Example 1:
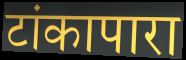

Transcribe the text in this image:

टांकापारा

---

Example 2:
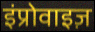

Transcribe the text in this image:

इंप्रोवाइज़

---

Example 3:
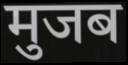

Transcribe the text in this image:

मुजब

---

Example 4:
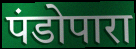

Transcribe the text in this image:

पंडोपारा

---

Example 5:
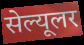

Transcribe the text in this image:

सेल्यूलर